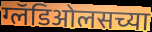
ग्लॅडिओलसच्या